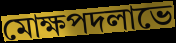
মোক্ষপদলাভে